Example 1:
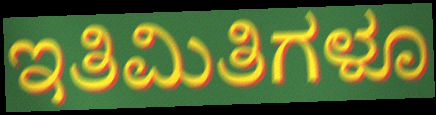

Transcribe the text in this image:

ಇತಿಮಿತಿಗಳೂ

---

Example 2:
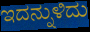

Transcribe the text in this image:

ಇದನ್ನುಳಿದು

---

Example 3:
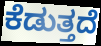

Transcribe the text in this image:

ಕೆಡುತ್ತದೆ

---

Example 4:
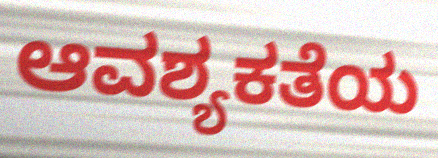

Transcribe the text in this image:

ಆವಶ್ಯಕತೆಯ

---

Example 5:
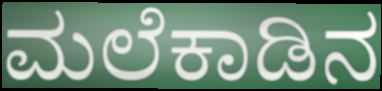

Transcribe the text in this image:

ಮಲೆಕಾಡಿನ